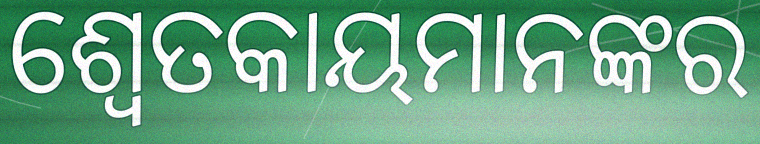
ଶ୍ବେତକାୟମାନଙ୍କର